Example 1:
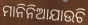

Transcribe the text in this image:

ମାନିନିଆଯାଉଚି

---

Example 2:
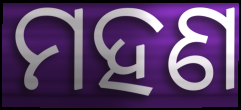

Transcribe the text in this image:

ମହଣ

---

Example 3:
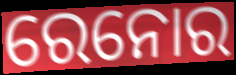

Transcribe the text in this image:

ରେନୋର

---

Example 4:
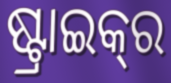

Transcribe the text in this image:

ଷ୍ଟ୍ରାଇକ୍‍ର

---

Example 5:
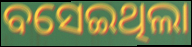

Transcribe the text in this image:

ବସେଇଥିଲା